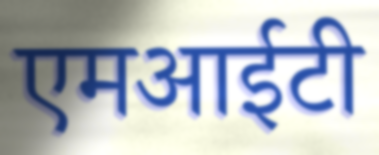
एमआईटी